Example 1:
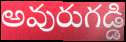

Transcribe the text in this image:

అవురుగడ్డి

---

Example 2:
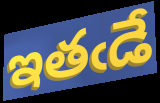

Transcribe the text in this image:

ఇతఁడే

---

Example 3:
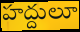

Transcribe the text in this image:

హద్దులూ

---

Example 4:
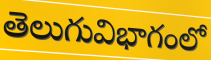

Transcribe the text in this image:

తెలుగువిభాగంలో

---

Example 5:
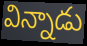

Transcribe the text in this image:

విన్నాడు